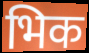
भिक